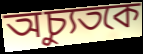
অচ্যুতকে